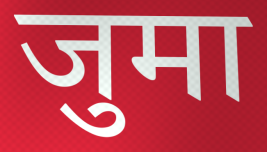
जुमा